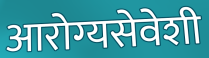
आरोग्यसेवेशी